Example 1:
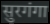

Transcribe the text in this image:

सुरगंगा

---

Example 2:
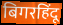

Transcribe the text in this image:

बिगरहिंदू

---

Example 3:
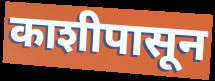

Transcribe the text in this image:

काशीपासून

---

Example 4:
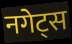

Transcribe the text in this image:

नगेट्स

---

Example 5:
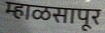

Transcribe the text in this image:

म्हाळसापूर